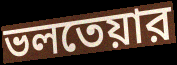
ভলতেয়ার